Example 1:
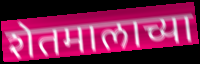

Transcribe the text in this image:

शेतमालाच्या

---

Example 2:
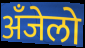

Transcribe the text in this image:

अँजेलो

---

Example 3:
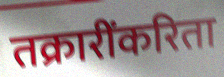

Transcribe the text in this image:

तक्रारींकरिता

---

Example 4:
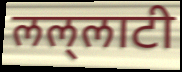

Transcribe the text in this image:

लल्लाटी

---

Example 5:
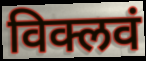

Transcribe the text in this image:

विक्लवं